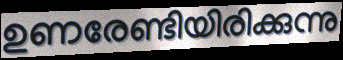
ഉണരേണ്ടിയിരിക്കുന്നു